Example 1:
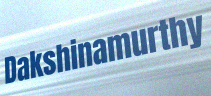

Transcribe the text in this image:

Dakshinamurthy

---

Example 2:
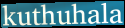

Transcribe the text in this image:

kuthuhala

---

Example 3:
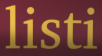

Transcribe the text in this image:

listi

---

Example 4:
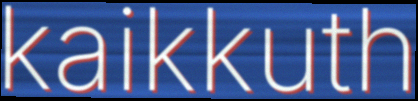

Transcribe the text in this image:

kaikkuth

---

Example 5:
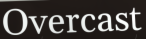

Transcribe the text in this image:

Overcast